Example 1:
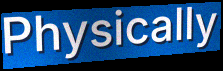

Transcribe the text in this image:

Physically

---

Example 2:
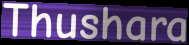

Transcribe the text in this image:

Thushara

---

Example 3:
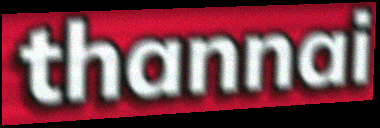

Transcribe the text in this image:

thannai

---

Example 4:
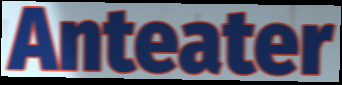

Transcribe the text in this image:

Anteater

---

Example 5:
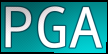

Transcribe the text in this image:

PGA